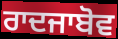
ਰਾਦਜਾਬੋਵ